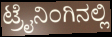
ಟ್ರೈನಿಂಗಿನಲ್ಲಿ